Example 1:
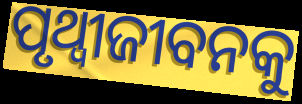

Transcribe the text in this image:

ପୃଥ୍ୱୀଜୀବନକୁ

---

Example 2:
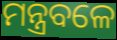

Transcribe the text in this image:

ମନ୍ତ୍ରବଳେ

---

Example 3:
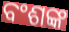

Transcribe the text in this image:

ବଂଶଙ୍କ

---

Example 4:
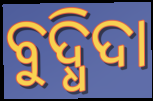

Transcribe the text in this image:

ବୁଦ୍ଧିଦା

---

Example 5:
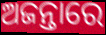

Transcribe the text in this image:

ଅଜନ୍ତାରେ